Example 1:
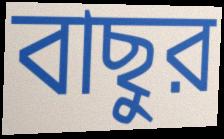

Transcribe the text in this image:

বাছুর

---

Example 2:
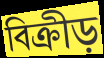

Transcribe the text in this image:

বিক্রীড়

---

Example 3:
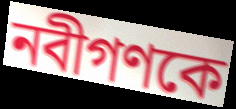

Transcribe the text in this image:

নবীগণকে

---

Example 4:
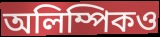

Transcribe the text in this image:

অলিম্পিকও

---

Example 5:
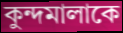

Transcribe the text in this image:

কুন্দমালাকে